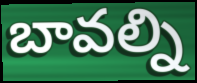
బావల్ని